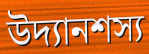
উদ্যানশস্য